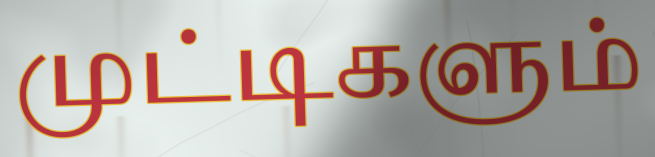
முட்டிகளும்